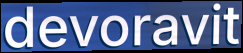
devoravit